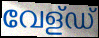
വേള്ഡ്